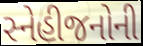
સ્નેહીજનોની